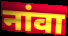
नांवा